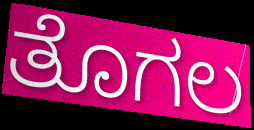
ತೊಗಲ